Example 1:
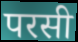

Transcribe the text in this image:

परसी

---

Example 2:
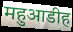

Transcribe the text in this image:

महुआडीह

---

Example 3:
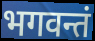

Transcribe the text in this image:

भगवन्तं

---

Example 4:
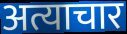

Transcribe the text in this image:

अत्याचार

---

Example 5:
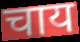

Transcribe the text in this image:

चाय